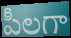
పీలగా